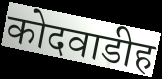
कोदवाडीह